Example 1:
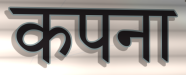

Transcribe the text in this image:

कपना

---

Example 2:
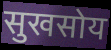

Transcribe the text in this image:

सुखसोय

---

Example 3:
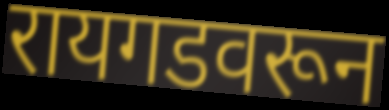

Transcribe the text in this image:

रायगडवरून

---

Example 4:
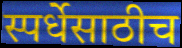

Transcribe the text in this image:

स्पर्धेसाठीच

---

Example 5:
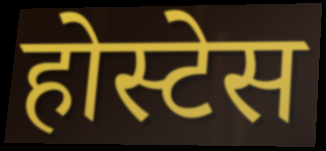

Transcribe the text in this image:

होस्टेस